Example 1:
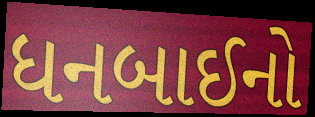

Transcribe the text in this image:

ધનબાઈનો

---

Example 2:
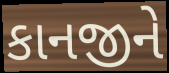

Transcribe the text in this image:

કાનજીને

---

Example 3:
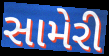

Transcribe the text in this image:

સામેરી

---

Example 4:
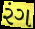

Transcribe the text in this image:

રંગ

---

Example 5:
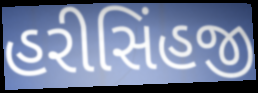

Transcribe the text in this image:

હરીસિંહજી